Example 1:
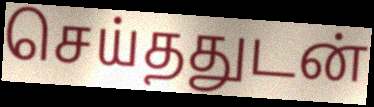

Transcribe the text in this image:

செய்ததுடன்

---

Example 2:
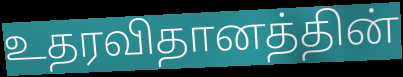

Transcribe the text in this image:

உதரவிதானத்தின்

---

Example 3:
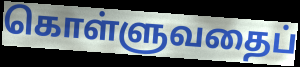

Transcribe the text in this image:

கொள்ளுவதைப்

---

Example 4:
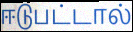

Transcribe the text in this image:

ஈடுபட்டால்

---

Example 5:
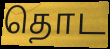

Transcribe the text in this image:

தொட